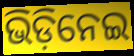
ଭିଡ଼ିନେଇ